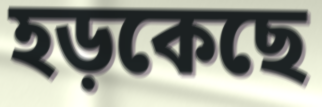
হড়কেছে